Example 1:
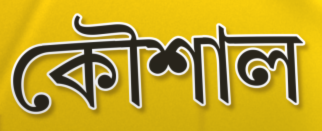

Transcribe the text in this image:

কৌশাল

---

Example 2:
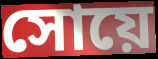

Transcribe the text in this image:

সোয়ে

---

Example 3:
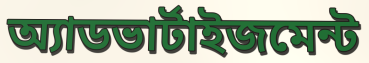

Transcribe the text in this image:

অ্যাডভার্টাইজমেন্ট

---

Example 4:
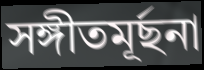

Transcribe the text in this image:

সঙ্গীতমূর্ছনা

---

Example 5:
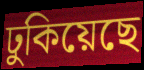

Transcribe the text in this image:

ঢুকিয়েছে